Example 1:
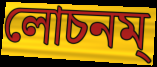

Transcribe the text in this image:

লোচনম্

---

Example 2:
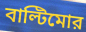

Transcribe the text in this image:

বাল্টিমোর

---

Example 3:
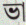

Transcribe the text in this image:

ভা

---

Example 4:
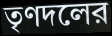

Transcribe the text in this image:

তৃণদলের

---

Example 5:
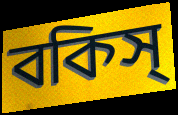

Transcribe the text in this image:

বকিস্